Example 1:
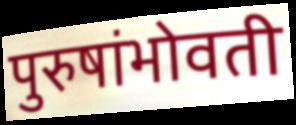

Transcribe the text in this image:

पुरुषांभोवती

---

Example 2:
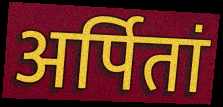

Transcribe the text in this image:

अर्पितां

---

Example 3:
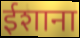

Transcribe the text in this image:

ईशाना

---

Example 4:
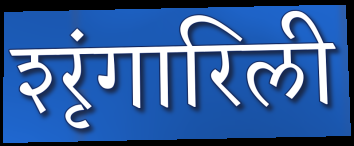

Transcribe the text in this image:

श्रृंगारिली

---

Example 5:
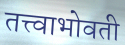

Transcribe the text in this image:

तत्त्वाभोवती